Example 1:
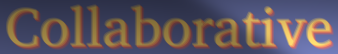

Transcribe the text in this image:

Collaborative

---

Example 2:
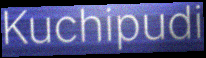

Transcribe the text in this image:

Kuchipudi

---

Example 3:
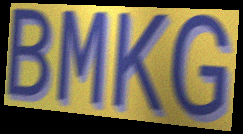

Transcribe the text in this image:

BMKG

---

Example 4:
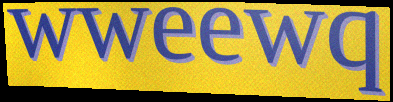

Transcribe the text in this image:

wweewq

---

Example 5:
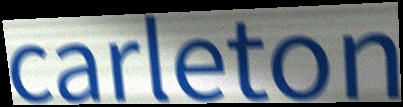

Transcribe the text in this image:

carleton